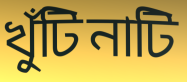
খুঁটিনাটি